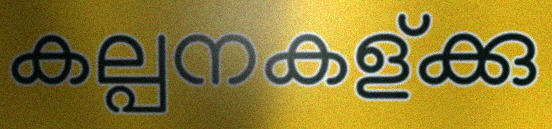
കല്പനകള്ക്കു